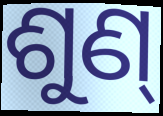
ଶୁଣ୍